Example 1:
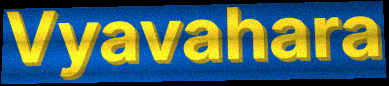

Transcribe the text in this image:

Vyavahara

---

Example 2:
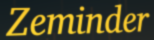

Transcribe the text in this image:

Zeminder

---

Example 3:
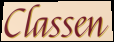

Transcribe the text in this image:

Classen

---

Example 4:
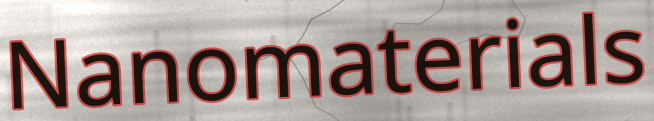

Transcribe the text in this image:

Nanomaterials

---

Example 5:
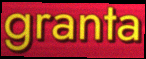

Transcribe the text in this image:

granta